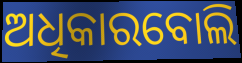
ଅଧିକାରବୋଲି